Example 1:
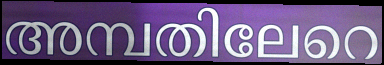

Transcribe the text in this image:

അമ്പതിലേറെ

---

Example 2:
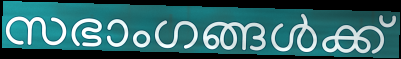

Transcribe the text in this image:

സഭാംഗങ്ങൾക്ക്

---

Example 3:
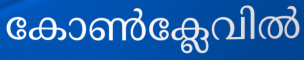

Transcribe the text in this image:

കോൺക്ലേവിൽ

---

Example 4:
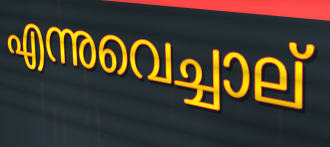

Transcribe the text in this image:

എന്നുവെച്ചാല്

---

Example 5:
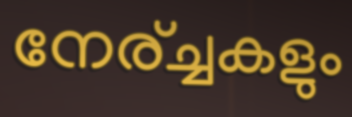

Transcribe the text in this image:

നേര്ച്ചകളും